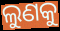
ଲୁଣକୁ